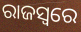
ରାଜସ୍ବରେ